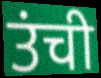
उंची